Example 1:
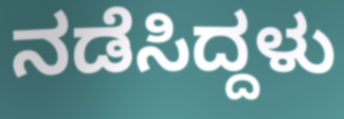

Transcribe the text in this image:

ನಡೆಸಿದ್ದಳು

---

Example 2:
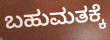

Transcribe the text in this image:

ಬಹುಮತಕ್ಕೆ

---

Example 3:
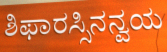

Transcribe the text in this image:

ಶಿಫಾರಸ್ಸಿನನ್ವಯ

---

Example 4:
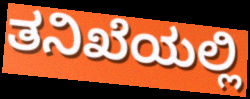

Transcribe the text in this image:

ತನಿಖೆಯಲ್ಲಿ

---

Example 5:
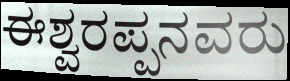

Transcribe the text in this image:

ಈಶ್ವರಪ್ಪನವರು